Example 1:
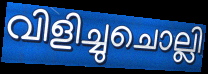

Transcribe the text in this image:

വിളിച്ചുചൊല്ലി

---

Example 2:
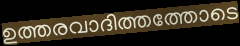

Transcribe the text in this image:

ഉത്തരവാദിത്തത്തോടെ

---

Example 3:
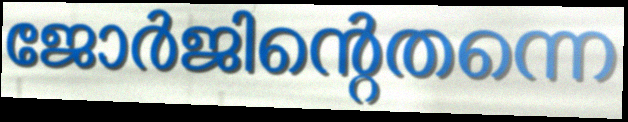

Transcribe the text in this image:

ജോർജിന്റെതന്നെ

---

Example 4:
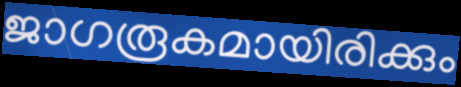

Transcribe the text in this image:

ജാഗരൂകമായിരിക്കും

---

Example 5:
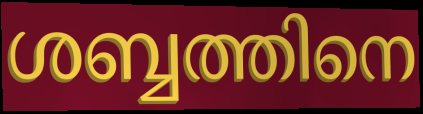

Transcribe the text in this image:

ശബ്ബത്തിനെ